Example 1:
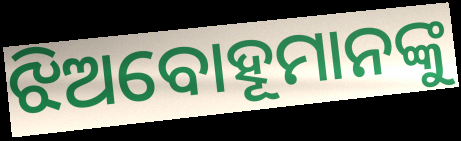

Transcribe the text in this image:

ଝିଅବୋହୂମାନଙ୍କୁ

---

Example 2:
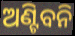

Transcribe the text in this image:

ଅଣ୍ଟିବନି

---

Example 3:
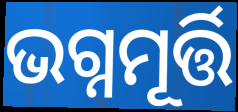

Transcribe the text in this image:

ଭଗ୍ନମୂର୍ତ୍ତି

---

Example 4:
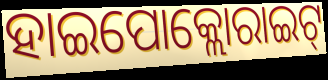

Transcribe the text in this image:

ହାଇପୋକ୍ଲୋରାଇଟ୍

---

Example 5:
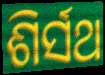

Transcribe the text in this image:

ଶିର୍ସଥ